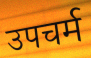
उपचर्म